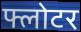
फ्लोटर